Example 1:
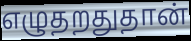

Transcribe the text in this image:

எழுதறதுதான்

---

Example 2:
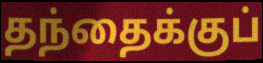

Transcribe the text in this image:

தந்தைக்குப்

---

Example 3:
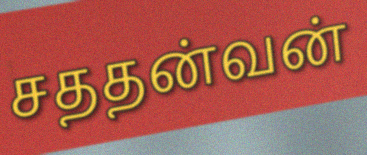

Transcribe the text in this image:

சததன்வன்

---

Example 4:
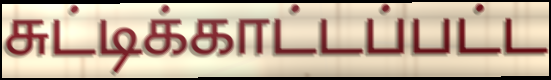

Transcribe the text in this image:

சுட்டிக்காட்டப்பட்ட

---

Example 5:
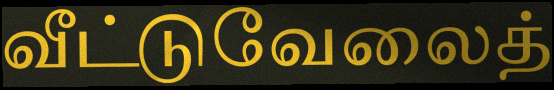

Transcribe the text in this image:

வீட்டுவேலைத்